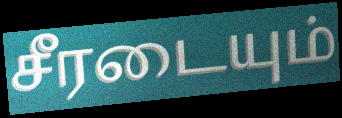
சீரடையும்